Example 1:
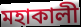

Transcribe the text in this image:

মহাকালী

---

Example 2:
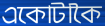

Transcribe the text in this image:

একোটাকৈ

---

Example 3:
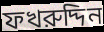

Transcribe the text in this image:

ফখৰুদ্দিন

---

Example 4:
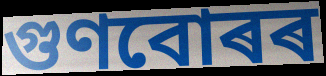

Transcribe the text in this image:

গুণবোৰৰ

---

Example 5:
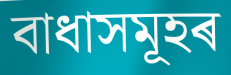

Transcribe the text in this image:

বাধাসমূহৰ